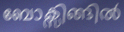
ബോക്സിങ്ങിൽ